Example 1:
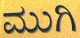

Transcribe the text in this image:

ಮುಗಿ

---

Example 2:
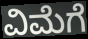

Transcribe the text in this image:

ವಿಮೆಗೆ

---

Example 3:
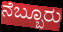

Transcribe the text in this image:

ನೆಬ್ಬೂರು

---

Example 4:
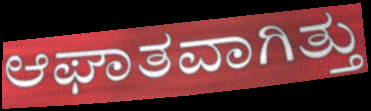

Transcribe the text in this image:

ಆಘಾತವಾಗಿತ್ತು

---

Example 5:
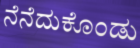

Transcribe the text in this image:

ನೆನೆದುಕೊಂಡು